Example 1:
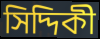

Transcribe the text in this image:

সিদ্দিকী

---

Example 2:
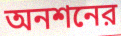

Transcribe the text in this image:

অনশনের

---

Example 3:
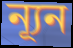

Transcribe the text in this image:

ন্যূন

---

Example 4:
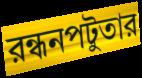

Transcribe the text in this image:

রন্ধনপটুতার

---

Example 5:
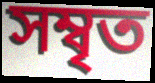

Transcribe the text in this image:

সম্বৃত